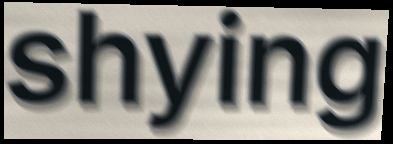
shying